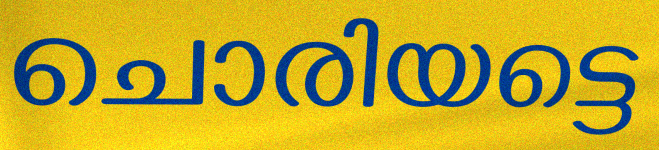
ചൊരിയട്ടെ